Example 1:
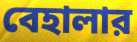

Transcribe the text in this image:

বেহালার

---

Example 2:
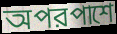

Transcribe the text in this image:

অপরপাশে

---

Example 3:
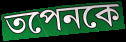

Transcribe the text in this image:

তপেনকে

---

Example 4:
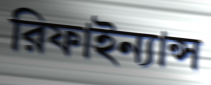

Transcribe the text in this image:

রিফাইন্যান্স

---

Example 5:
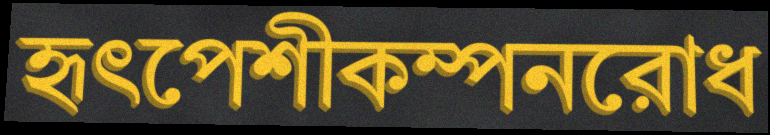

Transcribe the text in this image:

হৃৎপেশীকম্পনরোধ